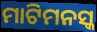
ମାଟିମନସ୍କ